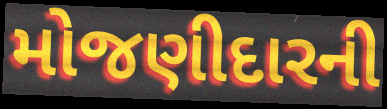
મોજણીદારની